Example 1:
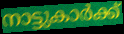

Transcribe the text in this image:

നാട്ടുകാർക്ക്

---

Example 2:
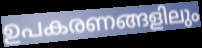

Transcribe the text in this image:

ഉപകരണങ്ങളിലും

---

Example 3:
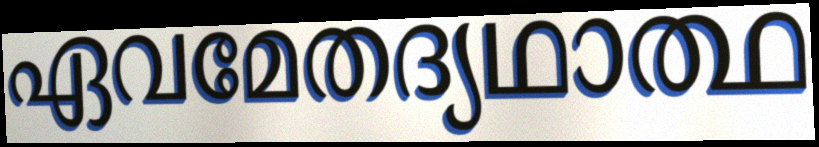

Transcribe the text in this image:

ഏവമേതദ്യഥാത്ഥ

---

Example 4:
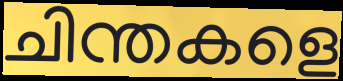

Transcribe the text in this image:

ചിന്തകളെ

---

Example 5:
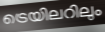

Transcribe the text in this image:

ട്രെയിലറിലും